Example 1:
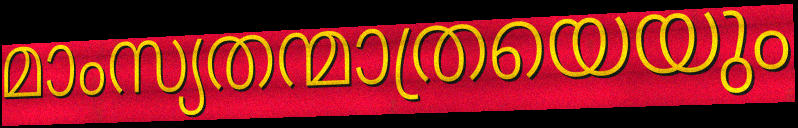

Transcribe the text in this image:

മാംസ്യതന്മാത്രയെയും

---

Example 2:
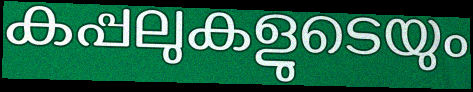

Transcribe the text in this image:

കപ്പലുകളുടെയും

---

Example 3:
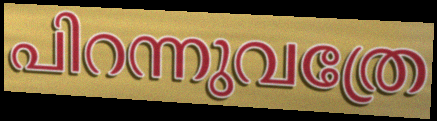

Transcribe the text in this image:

പിറന്നുവത്രേ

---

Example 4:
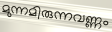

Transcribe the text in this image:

മുന്നമിരുന്നവണ്ണം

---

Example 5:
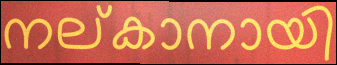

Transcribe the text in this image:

നല്കാനായി